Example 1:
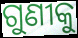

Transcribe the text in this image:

ଗୁଣୀକୁ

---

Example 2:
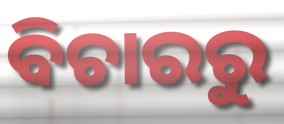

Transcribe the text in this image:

ବିଚାରରୁ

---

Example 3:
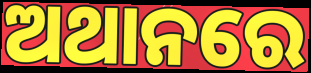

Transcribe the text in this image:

ଅଥାନରେ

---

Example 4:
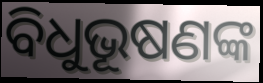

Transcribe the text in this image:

ବିଧୁଭୂଷଣଙ୍କ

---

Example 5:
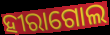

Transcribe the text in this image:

ହୀରାଗୋଲ